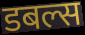
डबल्‍स